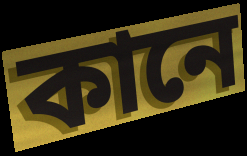
কানে